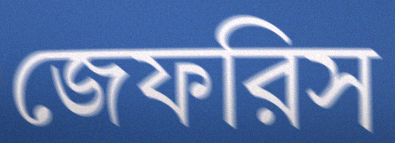
জেফরিস